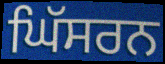
ਘਿੱਸਰਨ